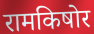
रामकिषोर